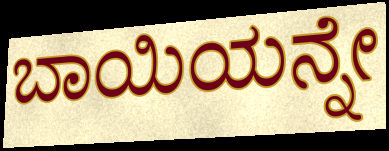
ಬಾಯಿಯನ್ನೇ